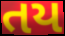
તય